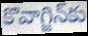
కొవాగ్జిన్‌కు